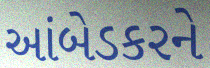
આંબેડકરને